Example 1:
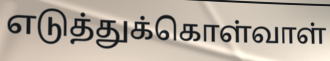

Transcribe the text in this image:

எடுத்துக்கொள்வாள்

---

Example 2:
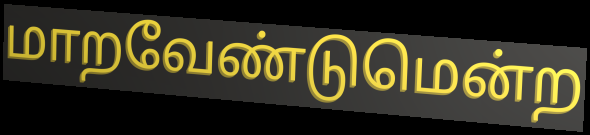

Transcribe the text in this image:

மாறவேண்டுமென்ற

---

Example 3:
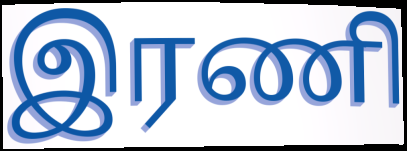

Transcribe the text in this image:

இரணி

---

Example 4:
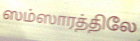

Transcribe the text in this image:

ஸம்ஸாரத்திலே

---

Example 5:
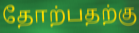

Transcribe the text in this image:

தோற்பதற்கு